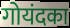
गोयंदका